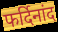
फर्दिनांद